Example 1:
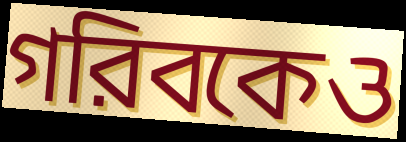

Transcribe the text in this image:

গরিবকেও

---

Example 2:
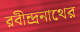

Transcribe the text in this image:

রবীন্দ্রনাথের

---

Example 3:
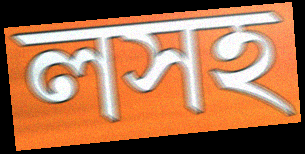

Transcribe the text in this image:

লসহ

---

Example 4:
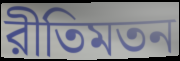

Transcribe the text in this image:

রীতিমতন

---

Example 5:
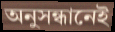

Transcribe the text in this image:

অনুসন্ধানেই